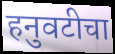
हनुवटीचा